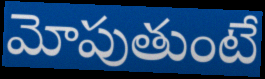
మోపుతుంటే